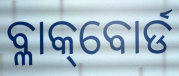
ବ୍ଳାକ୍‌ବୋର୍ଡ